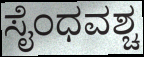
ಸೈಂಧವಶ್ಚ